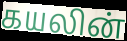
கயலின்